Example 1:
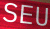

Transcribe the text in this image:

SEU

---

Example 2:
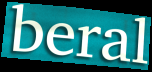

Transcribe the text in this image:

beral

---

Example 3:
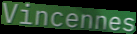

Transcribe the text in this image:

Vincennes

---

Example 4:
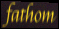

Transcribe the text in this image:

fathom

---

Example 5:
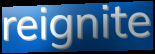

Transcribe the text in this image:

reignite